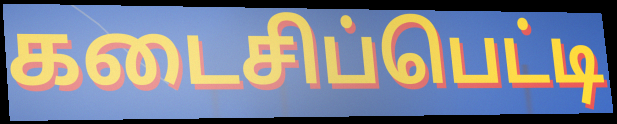
கடைசிப்பெட்டி